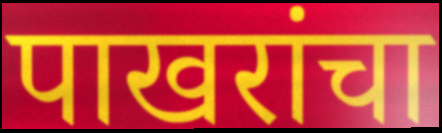
पाखरांचा